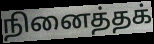
நினைத்தக்